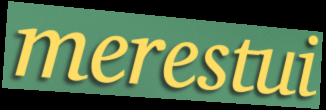
merestui